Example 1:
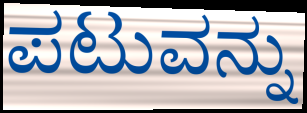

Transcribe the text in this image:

ಪಟುವನ್ನು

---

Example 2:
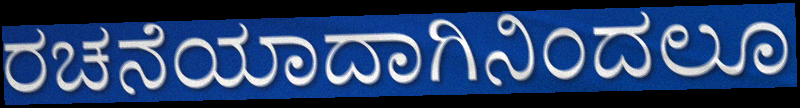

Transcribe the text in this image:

ರಚನೆಯಾದಾಗಿನಿಂದಲೂ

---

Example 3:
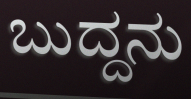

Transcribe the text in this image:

ಬುದ್ದನು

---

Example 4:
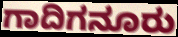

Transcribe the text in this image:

ಗಾದಿಗನೂರು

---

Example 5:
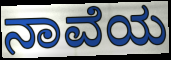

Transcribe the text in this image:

ನಾವೆಯ